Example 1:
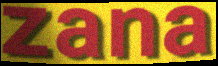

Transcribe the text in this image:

zana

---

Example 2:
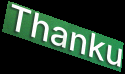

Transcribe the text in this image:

Thanku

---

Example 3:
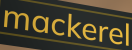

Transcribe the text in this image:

mackerel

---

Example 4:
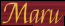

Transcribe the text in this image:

Maru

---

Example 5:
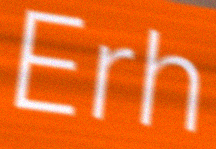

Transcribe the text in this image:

Erh